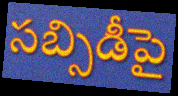
సబ్సిడీపై